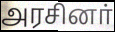
அரசினர்